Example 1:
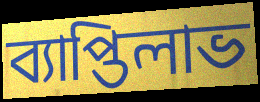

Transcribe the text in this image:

ব্যাপ্তিলাভ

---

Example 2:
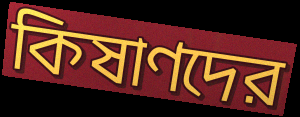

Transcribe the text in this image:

কিষাণদের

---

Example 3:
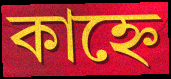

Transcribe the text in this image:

কাহ্নে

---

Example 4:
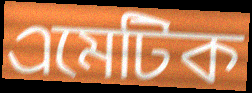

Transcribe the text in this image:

এমেটিক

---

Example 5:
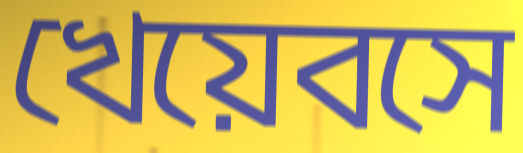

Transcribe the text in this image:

খেয়েবসে